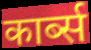
कार्ब्स